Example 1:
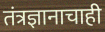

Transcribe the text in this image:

तंत्रज्ञानाचाही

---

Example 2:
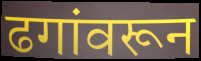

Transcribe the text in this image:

ढगांवरून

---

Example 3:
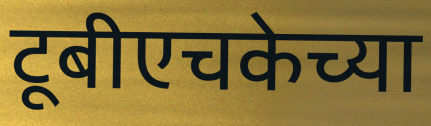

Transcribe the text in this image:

टूबीएचकेच्या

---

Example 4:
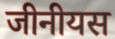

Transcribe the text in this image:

जीनीयस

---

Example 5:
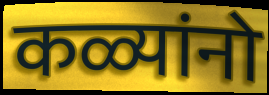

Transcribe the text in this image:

कळ्यांनो